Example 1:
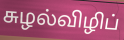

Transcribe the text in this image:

சுழல்விழிப்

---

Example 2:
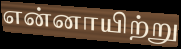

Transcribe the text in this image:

என்னாயிற்று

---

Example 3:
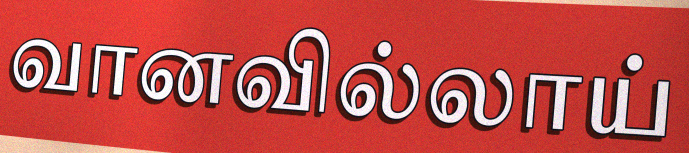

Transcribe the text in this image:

வானவில்லாய்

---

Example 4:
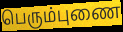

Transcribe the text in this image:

பெரும்புணை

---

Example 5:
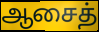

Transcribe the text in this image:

ஆசைத்